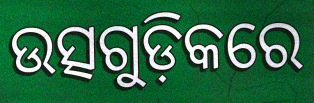
ଉତ୍ସଗୁଡ଼ିକରେ